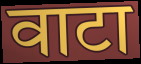
वाटा